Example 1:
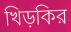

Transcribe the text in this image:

খিড়কির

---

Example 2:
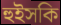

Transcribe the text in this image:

হুইসকি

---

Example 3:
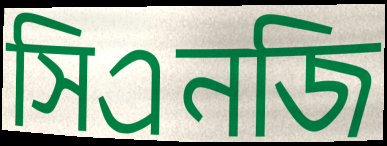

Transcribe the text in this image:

সিএনজি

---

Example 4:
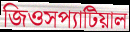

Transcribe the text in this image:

জিওসপ্যাটিয়াল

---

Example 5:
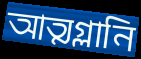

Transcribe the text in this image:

আত্মগ্লানি